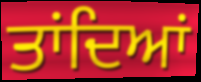
ਤਾਂਦਿਆਂ